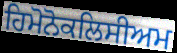
ਹਿਮੋਨੋਕਲਿਸੀਅਮ